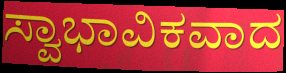
ಸ್ವಾಭಾವಿಕವಾದ